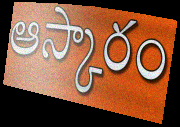
ఆస్కారం